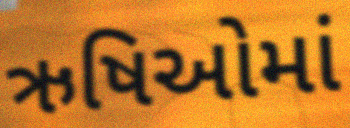
ઋષિઓમાં